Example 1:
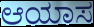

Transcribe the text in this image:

ಆಯಾಸ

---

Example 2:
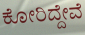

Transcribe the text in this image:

ಕೋರಿದ್ದೇವೆ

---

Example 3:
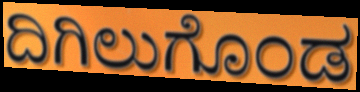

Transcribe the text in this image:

ದಿಗಿಲುಗೊಂಡ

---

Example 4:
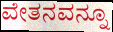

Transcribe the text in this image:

ವೇತನವನ್ನೂ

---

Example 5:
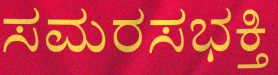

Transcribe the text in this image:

ಸಮರಸಭಕ್ತಿ